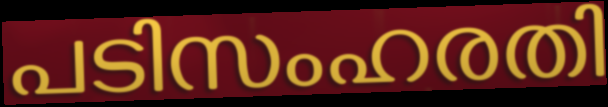
പടിസംഹരതി